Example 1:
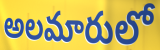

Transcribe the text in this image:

అలమారులో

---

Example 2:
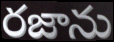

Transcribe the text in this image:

రజాను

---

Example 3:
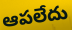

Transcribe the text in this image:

ఆపలేదు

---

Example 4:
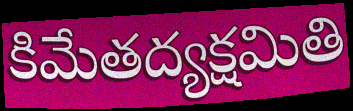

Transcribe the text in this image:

కిమేతద్యక్షమితి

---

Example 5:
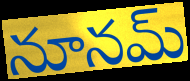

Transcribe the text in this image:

నూనమ్